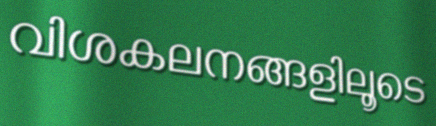
വിശകലനങ്ങളിലൂടെ